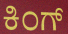
ಕಿಂಗ್